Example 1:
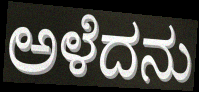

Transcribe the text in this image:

ಅಳೆದನು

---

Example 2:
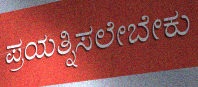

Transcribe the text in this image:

ಪ್ರಯತ್ನಿಸಲೇಬೇಕು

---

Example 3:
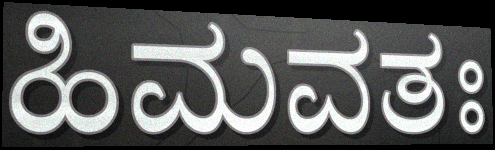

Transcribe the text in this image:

ಹಿಮವತಃ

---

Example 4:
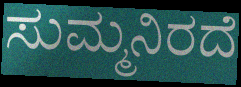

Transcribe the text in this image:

ಸುಮ್ಮನಿರದೆ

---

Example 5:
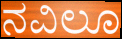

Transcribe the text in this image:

ನವಿಲೂ